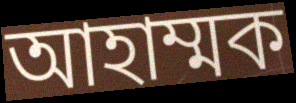
আহাম্মক